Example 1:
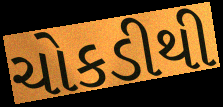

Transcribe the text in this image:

ચોકડીથી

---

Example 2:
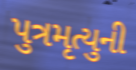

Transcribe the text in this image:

પુત્રમૃત્યુની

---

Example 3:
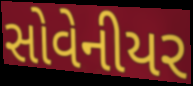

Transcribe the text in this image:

સોવેનીયર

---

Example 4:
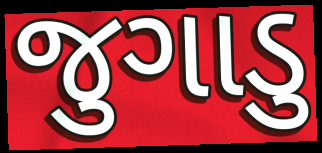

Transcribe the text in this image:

જુગાડુ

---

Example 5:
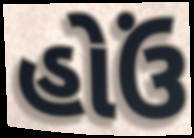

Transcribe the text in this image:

હોઉં